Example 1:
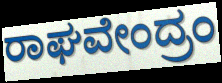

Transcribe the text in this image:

ರಾಘವೇಂದ್ರಂ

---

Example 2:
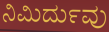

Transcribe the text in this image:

ನಿಮಿರ್ದುವು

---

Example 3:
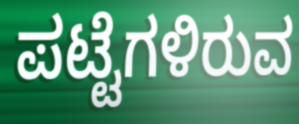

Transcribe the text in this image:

ಪಟ್ಟೆಗಳಿರುವ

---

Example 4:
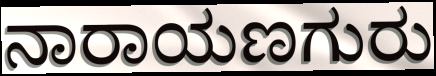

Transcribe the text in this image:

ನಾರಾಯಣಗುರು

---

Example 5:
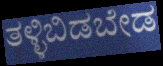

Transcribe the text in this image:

ತಳ್ಳಿಬಿಡಬೇಡ